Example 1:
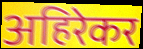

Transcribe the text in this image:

अहिरेकर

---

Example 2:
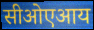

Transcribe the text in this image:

सीओएआय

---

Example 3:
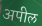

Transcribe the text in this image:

अपील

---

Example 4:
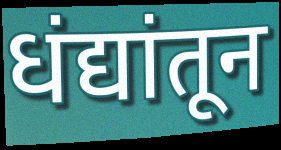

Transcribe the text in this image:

धंद्यांतून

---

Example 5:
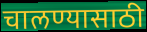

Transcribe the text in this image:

चालण्यासाठी